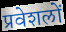
प्रवेशलों